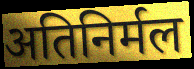
अतिनिर्मल